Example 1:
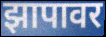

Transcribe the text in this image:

झापावर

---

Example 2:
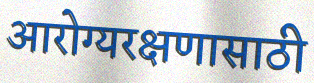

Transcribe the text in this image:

आरोग्यरक्षणासाठी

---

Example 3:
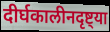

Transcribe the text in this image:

दीर्घकालीनदृष्ट्या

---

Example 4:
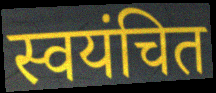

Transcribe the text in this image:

स्वयंचित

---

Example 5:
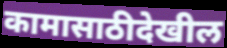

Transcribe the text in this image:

कामासाठीदेखील